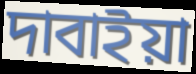
দাবাইয়া